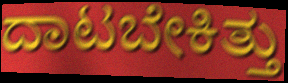
ದಾಟಬೇಕಿತ್ತು